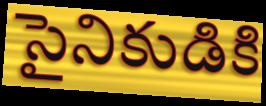
సైనికుడికి